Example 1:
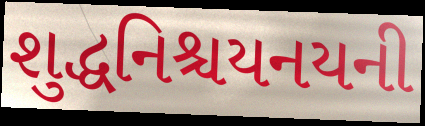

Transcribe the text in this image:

શુદ્ધનિશ્ચયનયની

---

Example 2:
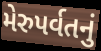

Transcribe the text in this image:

મેરુપર્વતનું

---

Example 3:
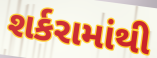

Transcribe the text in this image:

શર્કરામાંથી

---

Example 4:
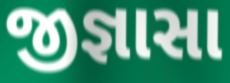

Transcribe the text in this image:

જીજ્ઞાસા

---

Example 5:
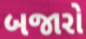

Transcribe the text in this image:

બજારો